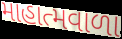
માહાત્મવાળા